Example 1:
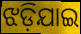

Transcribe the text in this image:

ଝଡ଼ିଯାଇ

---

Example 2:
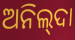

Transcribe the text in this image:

ଅନିଲ୍‌ଦା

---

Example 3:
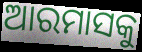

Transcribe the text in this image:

ଆରମାସକୁ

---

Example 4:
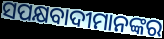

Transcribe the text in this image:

ସପକ୍ଷବାଦୀମାନଙ୍କର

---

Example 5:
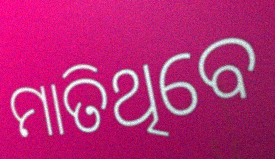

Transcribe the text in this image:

ମାତିଥିବେ